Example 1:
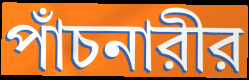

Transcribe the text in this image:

পাঁচনারীর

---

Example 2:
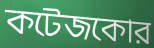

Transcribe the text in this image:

কটেজকোর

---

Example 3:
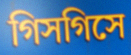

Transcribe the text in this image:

গিসগিসে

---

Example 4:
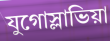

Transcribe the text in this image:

যুগোস্লাভিয়া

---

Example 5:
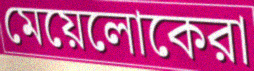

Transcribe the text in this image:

মেয়েলোকেরা